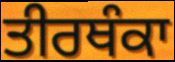
ਤੀਰਥੰਕਾ